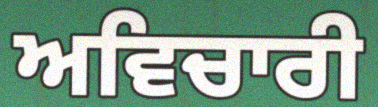
ਅਵਿਚਾਰੀ